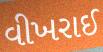
વીખરાઈ